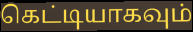
கெட்டியாகவும்